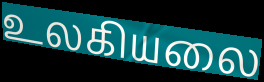
உலகியலை